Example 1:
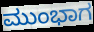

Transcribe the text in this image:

ಮುಂಭಾಗ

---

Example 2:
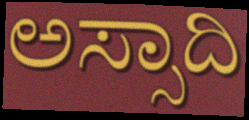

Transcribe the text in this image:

ಅಸ್ಸಾದಿ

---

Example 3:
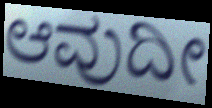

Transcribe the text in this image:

ಆವುದೀ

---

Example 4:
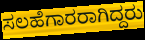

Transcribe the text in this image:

ಸಲಹೆಗಾರರಾಗಿದ್ದರು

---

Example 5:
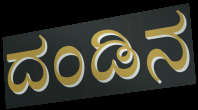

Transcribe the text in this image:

ದಂಡಿನ